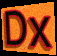
Dx